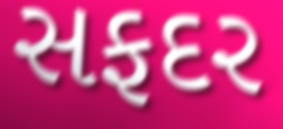
સફદર